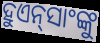
ହୁଏନ୍‌ସାଂଙ୍କୁ